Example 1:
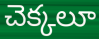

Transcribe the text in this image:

చెక్కలూ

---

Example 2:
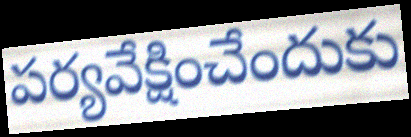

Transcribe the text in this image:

పర్యవేక్షించేందుకు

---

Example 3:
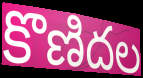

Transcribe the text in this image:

కొణిదల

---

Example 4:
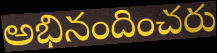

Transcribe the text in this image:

అభినందించరు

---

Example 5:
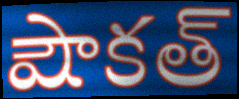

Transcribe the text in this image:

షౌకత్